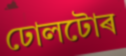
ঢোলটোৰ